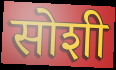
सोशी